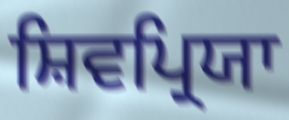
ਸ਼ਿਵਪ੍ਰਿਯਾ